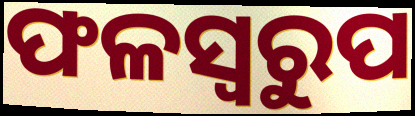
ଫଳସ୍ୱରୁପ